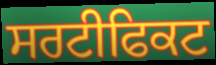
ਸਰਟੀਫਿਕਟ